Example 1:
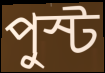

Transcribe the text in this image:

পুস্ট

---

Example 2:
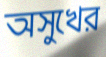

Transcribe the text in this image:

অসুখের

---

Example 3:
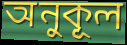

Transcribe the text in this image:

অনুকূল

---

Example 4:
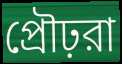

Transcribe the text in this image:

প্রৌঢ়রা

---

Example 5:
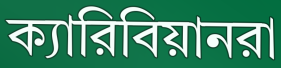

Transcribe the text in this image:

ক্যারিবিয়ানরা